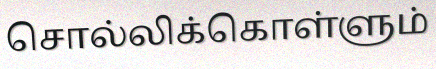
சொல்லிக்கொள்ளும்